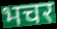
भचर